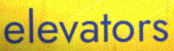
elevators